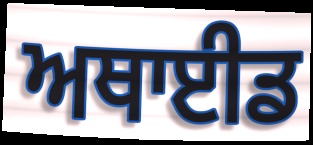
ਅਥਾਈਡ